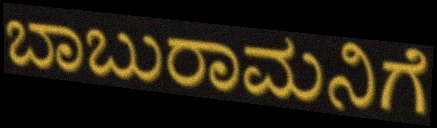
ಬಾಬುರಾಮನಿಗೆ